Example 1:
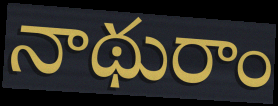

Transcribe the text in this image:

నాథురాం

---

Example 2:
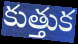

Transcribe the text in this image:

కుత్తుక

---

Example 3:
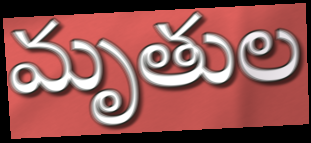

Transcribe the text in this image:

మృతుల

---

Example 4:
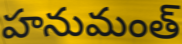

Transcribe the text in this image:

హనుమంత్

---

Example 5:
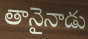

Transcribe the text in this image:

తానైనాడు